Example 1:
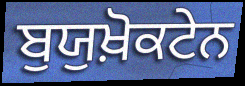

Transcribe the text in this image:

ਬੁਯੁਖ਼ੋਕਟੇਨ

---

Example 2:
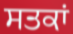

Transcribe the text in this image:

ਸਤਕਾਂ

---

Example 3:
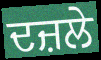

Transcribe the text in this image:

ਦਜ਼ਲੇ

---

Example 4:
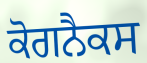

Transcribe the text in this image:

ਕੋਗਨੈਕਸ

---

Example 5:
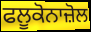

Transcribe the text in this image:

ਫਲੂਕੋਨਾਜ਼ੋਲ